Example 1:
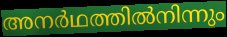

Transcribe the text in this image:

അനർഥത്തിൽനിന്നും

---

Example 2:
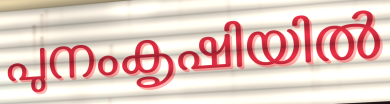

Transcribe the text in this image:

പുനംകൃഷിയിൽ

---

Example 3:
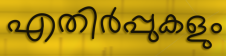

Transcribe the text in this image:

എതിർപ്പുകളും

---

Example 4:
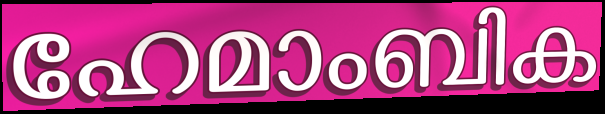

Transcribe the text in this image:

ഹേമാംബിക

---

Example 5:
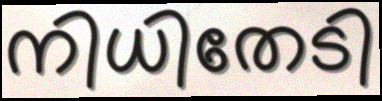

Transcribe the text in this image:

നിധിതേടി